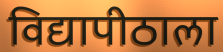
विद्यापीठाला